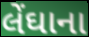
લેંઘાના